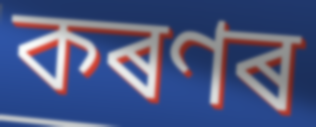
কৰণৰ